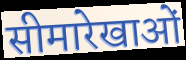
सीमारेखाओं